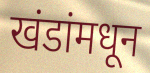
खंडांमधून